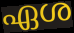
ഏശ